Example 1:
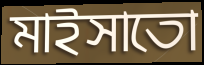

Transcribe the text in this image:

মাইসাতো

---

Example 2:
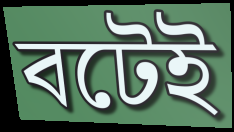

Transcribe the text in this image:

বটেই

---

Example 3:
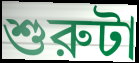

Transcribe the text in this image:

শুরুটা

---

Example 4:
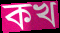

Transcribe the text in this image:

কখ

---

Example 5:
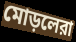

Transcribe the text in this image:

মোড়লেরা